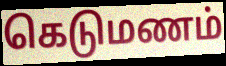
கெடுமணம்